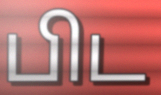
பிட